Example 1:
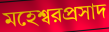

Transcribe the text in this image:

মহেশ্বরপ্রসাদ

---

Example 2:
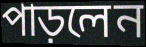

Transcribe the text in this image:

পাড়লেন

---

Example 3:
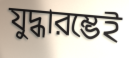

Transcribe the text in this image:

যুদ্ধারম্ভেই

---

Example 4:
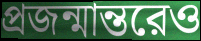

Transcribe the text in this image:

প্রজন্মান্তরেও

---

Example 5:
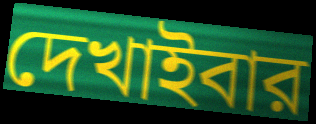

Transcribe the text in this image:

দেখাইবার